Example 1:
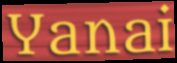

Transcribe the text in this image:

Yanai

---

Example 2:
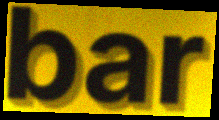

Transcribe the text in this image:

bar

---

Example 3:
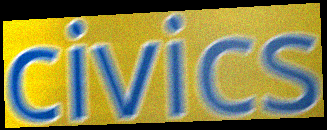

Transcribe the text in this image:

civics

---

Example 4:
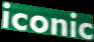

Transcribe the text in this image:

iconic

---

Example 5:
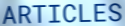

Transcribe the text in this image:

ARTICLES